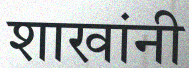
शाखांनी